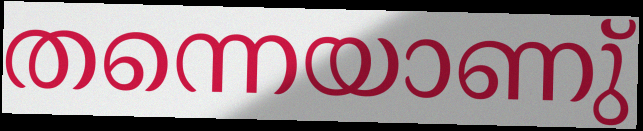
തന്നെയാണു്